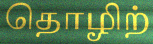
தொழிற்